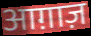
आग़ाज़